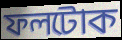
ফলটোক